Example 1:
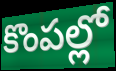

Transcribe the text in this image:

కొంపల్లో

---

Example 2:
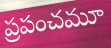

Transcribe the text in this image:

ప్రపంచమూ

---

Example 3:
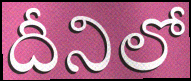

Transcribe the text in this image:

దీనిలో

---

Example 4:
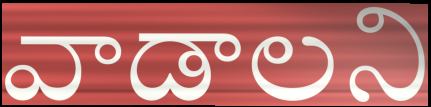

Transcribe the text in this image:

వాడాలని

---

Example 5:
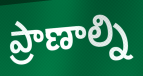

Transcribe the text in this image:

ప్రాణాల్ని